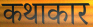
कथाकार